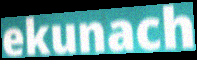
ekunach